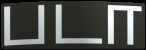
படா